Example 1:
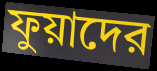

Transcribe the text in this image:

ফুয়াদের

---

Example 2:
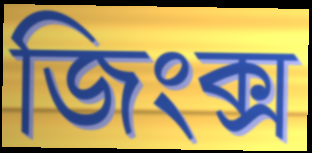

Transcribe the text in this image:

জিংক্স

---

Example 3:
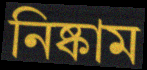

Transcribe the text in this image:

নিষ্কাম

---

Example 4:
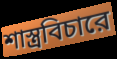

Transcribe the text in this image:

শাস্ত্রবিচারে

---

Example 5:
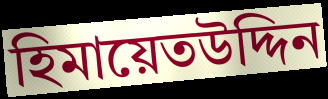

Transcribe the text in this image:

হিমায়েতউদ্দিন